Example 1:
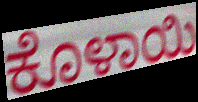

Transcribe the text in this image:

ಕೊಳಾಯಿ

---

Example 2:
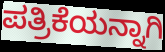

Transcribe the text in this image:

ಪತ್ರಿಕೆಯನ್ನಾಗಿ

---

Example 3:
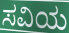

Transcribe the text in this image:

ಸವಿಯ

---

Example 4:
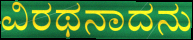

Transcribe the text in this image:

ವಿರಥನಾದನು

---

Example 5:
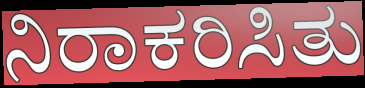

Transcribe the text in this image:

ನಿರಾಕರಿಸಿತು